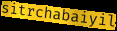
sitrchabaiyil